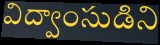
విద్వాంసుడిని